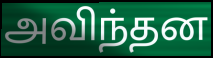
அவிந்தன